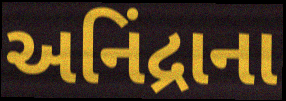
અનિંદ્રાના